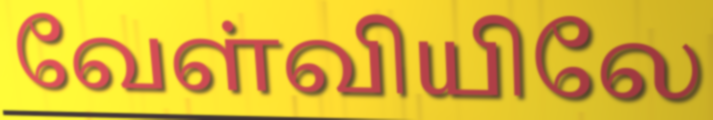
வேள்வியிலே